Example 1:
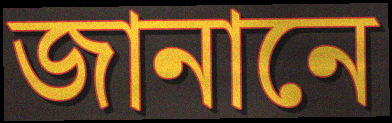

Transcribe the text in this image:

জানানে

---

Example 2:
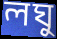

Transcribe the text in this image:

লঘু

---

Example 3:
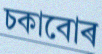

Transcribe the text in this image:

চকাবোৰ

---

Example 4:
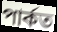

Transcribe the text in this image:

পাৰ্কত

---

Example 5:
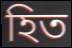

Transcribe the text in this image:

হিত